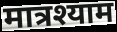
मात्रश्याम